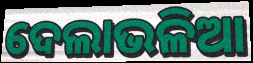
ଦେଲାଭଳିଆ